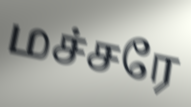
மச்சரே